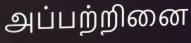
அப்பற்றினை